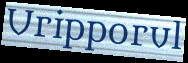
Uripporul